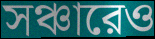
সঞ্চারেও